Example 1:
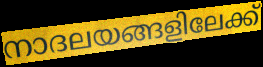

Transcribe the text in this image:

നാദലയങ്ങളിലേക്ക്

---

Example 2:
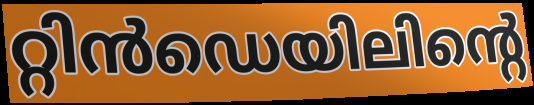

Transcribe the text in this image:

റ്റിൻഡെയിലിന്റെ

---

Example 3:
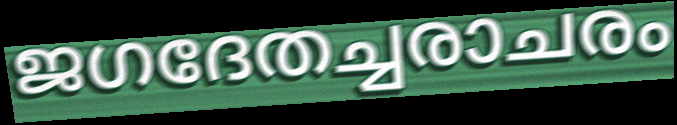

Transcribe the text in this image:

ജഗദേതച്ചരാചരം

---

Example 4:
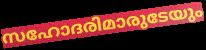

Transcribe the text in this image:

സഹോദരിമാരുടേയും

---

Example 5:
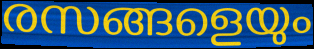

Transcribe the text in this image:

രസങ്ങളെയും